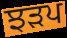
ਝੜਪ